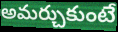
అమర్చుకుంటే